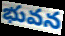
భువన